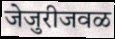
जेजुरीजवळ